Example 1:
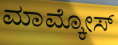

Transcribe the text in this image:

ಮಾಮ್ಕೋಸ್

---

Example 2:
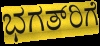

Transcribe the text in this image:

ಭಗತ್‍ರಿಗೆ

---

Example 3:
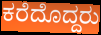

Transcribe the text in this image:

ಕರೆದೊದ್ದರು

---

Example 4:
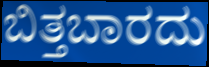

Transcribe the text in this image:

ಬಿತ್ತಬಾರದು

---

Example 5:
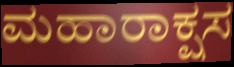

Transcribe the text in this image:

ಮಹಾರಾಕ್ಷಸ